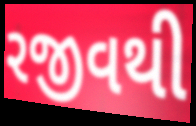
રજીવથી